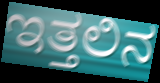
ಇತ್ತಲಿನ